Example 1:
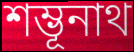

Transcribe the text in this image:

শম্ভূনাথ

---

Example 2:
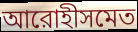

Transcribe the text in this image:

আরোহীসমেত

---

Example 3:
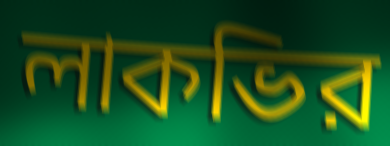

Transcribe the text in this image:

লাকভির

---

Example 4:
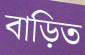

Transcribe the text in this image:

বাড়িত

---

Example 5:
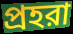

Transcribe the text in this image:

প্রহরা